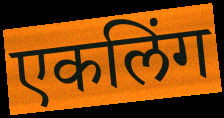
एकलिंग